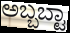
ಅಬ್ಬಬ್ಟಾ